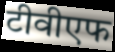
टीवीएफ